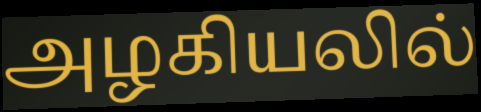
அழகியலில்